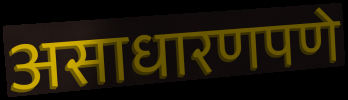
असाधारणपणे